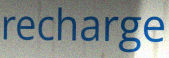
recharge